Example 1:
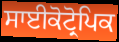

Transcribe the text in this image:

ਸਾਈਕੋਟ੍ਰੋਪਿਕ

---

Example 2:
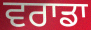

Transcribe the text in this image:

ਵਰਾਡਾ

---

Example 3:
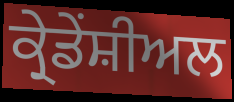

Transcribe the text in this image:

ਕ੍ਰੇਡੇਂਸ਼ੀਅਲ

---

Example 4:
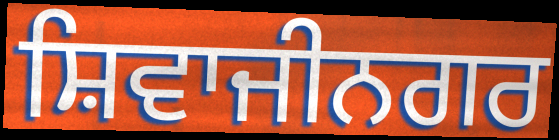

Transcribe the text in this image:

ਸ਼ਿਵਾਜੀਨਗਰ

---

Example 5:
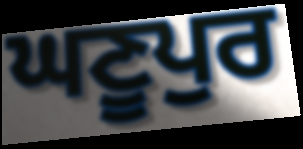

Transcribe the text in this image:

ਘਣੂਪੁਰ